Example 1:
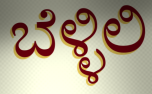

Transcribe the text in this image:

ಬೆಳ್ಳಿಲಿ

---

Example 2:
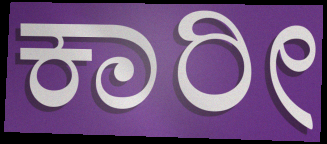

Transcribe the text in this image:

ಕಾರೀ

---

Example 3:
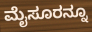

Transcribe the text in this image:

ಮೈಸೂರನ್ನೂ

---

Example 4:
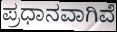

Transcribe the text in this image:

ಪ್ರಧಾನವಾಗಿವೆ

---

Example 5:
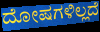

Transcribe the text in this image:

ದೋಷಗಳಿಲ್ಲದೆ